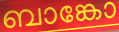
ബാങ്കോ